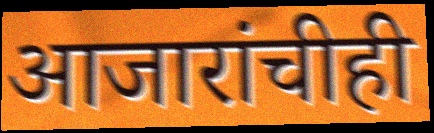
आजारांचीही